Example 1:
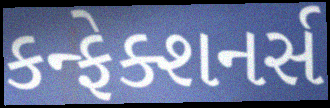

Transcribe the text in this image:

કન્ફેક્શનર્સ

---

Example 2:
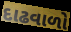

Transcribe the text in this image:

દાઢવાળો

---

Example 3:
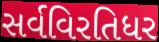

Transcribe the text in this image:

સર્વવિરતિધર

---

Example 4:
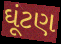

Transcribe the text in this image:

ઘૂંટણ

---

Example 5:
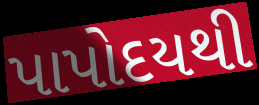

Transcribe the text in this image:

પાપોદયથી